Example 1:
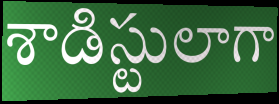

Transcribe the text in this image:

శాడిస్టులాగా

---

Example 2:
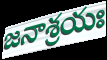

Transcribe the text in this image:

జనాశ్రయః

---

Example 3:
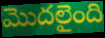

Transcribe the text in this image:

మొదలైంది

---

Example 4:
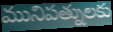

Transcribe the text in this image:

మునిపత్నులకు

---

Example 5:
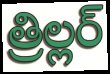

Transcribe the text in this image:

త్రిల్లర్